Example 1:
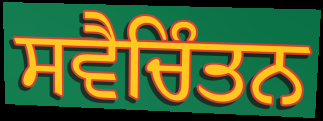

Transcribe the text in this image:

ਸਵੈਚਿੰਤਨ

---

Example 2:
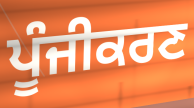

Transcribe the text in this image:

ਪੂੰਜੀਕਰਣ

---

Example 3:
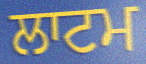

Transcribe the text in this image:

ਲਾਟਮ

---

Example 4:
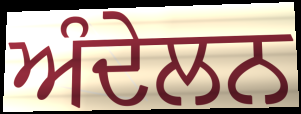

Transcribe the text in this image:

ਅੰਦੇਲਨ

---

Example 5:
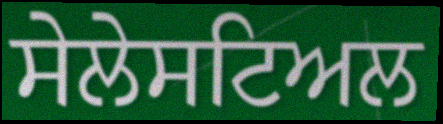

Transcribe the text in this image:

ਸੇਲੇਸਟਿਅਲ